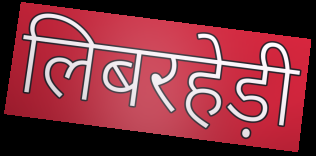
लिबरहेड़ी